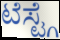
ಟೆಸ್ಟ್ಗೆ